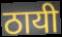
ठायी